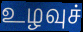
உழவுச்